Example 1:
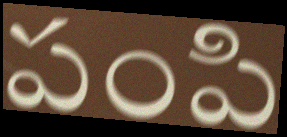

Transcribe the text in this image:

పంపి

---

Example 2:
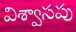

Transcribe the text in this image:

విశ్వాసపు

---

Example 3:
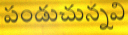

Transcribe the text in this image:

పండుచున్నవి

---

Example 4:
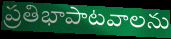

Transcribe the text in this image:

ప్రతిభాపాటవాలను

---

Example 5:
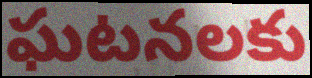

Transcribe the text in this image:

ఘటనలకు